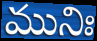
మునిః